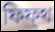
ফিফ্থ